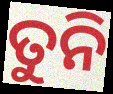
ତୁନି